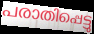
പരാതിപ്പെട്ടു